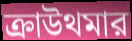
ক্রাউথমার